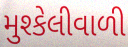
મુશ્કેલીવાળી